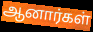
ஆனார்கள்